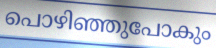
പൊഴിഞ്ഞുപോകും